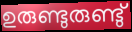
ഉരുണ്ടുരുണ്ടു്